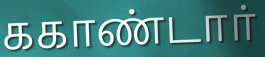
ககாண்டார்